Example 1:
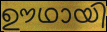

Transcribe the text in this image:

ഊഥായി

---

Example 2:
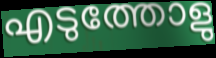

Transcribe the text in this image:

എടുത്തോളു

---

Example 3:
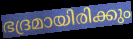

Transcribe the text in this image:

ഭദ്രമായിരിക്കും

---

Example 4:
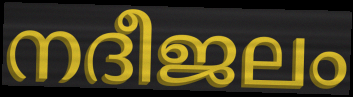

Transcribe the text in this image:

നദീജലം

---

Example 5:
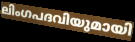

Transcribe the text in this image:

ലിംഗപദവിയുമായി